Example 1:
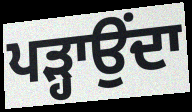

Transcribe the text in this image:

ਪੜ੍ਹਾਉਂਦਾ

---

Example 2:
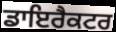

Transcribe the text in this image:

ਡਾਇਰੈਕਟਰ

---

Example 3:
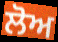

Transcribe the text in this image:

ਲੋਅ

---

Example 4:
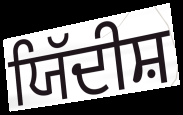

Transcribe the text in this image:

ਯਿੱਦੀਸ਼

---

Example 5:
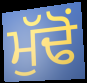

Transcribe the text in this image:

ਮੁੱਢੋਂ